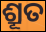
ଶ୍ରୂତ